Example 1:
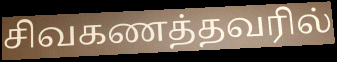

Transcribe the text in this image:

சிவகணத்தவரில்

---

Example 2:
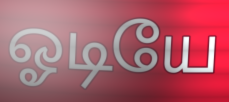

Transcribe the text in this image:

ஓடியே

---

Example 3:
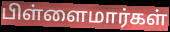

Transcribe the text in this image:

பிள்ளைமார்கள்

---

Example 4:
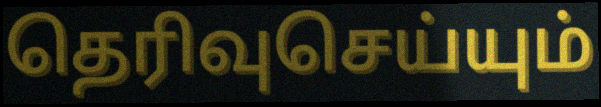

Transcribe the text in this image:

தெரிவுசெய்யும்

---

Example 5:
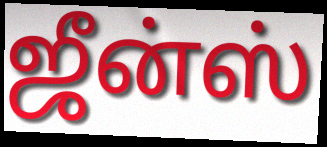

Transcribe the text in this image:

ஜீன்ஸ்